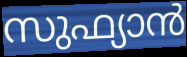
സുഫ്യാൻ